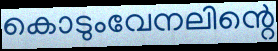
കൊടുംവേനലിന്റെ